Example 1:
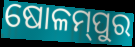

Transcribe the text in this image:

ଷୋଳମ୍‌ପୁର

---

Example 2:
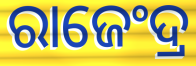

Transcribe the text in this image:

ରାଜେଂଦ୍ର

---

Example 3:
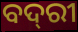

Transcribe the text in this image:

ବଦ୍‌ରୀ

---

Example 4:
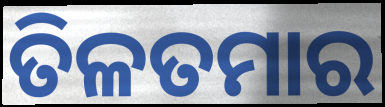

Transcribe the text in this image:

ତିଳତମାର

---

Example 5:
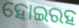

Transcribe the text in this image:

ହୋଇରହ